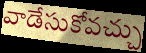
వాడేసుకోవచ్చు